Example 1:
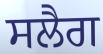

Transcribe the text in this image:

ਸਲੈਗ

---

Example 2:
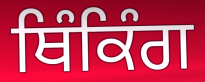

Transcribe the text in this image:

ਥਿੰਕਿੰਗ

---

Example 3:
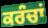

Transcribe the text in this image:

ਕਰੰਚਾਂ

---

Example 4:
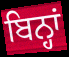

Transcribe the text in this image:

ਬਿਨ੍ਹਾਂ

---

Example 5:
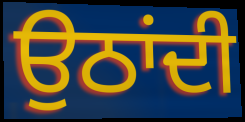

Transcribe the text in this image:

ਉਠਾਂਦੀ